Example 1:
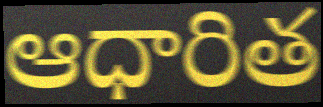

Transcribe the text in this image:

ఆధారిత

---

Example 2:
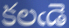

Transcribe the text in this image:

కలఁడె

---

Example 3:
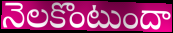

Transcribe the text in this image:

నెలకొంటుందా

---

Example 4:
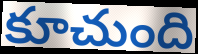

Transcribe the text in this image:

కూచుంది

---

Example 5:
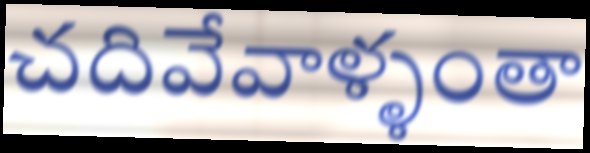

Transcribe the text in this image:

చదివేవాళ్ళంతా